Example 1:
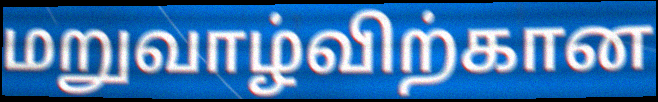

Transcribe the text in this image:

மறுவாழ்விற்கான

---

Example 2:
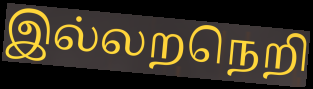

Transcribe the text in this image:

இல்லறநெறி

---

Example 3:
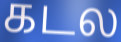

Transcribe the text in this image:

கடல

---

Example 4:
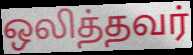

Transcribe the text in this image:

ஒலித்தவர்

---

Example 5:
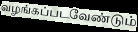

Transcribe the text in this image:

வழங்கப்படவேண்டும்